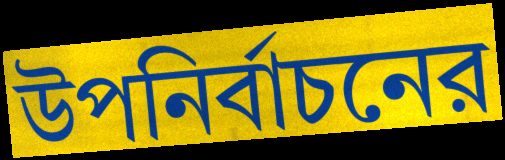
উপনির্বাচনের